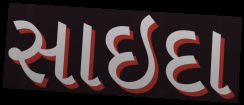
સાઇદા